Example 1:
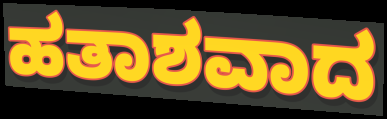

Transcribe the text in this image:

ಹತಾಶವಾದ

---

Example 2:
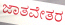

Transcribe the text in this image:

ಜಾತವೇತರ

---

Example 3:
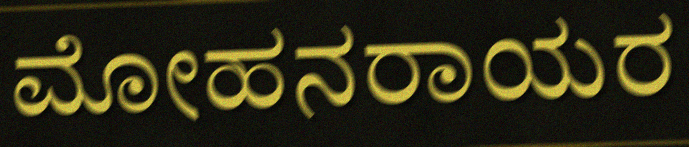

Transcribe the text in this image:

ಮೋಹನರಾಯರ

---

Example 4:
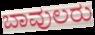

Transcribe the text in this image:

ಬಾವುಲರು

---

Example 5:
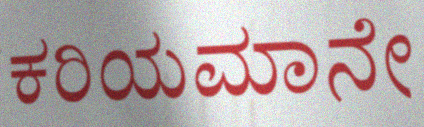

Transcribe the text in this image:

ಕರಿಯಮಾನೇ